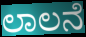
ಲಾಲನೆ